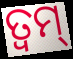
ତ୍ୱମ୍